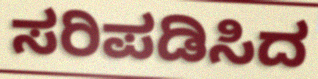
ಸರಿಪಡಿಸಿದ